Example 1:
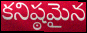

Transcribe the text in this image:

కనిష్ఠమైన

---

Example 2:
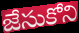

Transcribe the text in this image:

జేసుకోని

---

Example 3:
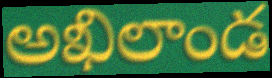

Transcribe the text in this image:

అఖిలాండ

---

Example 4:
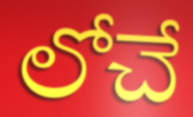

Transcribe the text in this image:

లోచే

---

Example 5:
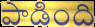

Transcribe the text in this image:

పాడింది